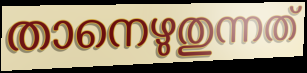
താനെഴുതുന്നത്